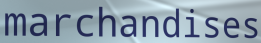
marchandises